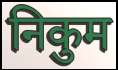
निकुम